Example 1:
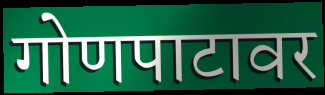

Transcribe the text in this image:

गोणपाटावर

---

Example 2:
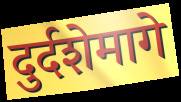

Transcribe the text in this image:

दुर्दशेमागे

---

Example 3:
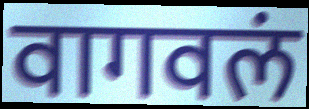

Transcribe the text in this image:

वागवलं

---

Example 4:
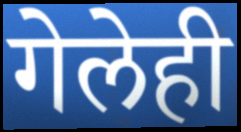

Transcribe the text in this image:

गेलेही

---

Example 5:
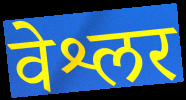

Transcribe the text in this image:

वेश्लर